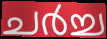
ചർച്ച